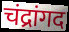
चंद्रांगद